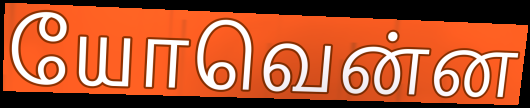
யோவென்ன